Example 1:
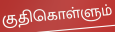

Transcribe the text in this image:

குதிகொள்ளும்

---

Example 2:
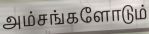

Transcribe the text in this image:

அம்சங்களோடும்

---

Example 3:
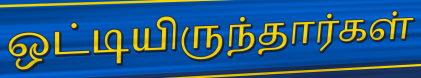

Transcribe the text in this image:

ஒட்டியிருந்தார்கள்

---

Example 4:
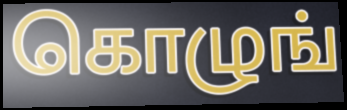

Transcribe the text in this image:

கொழுங்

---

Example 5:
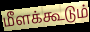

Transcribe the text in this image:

மீளக்கூடும்